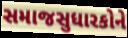
સમાજસુધારકોને